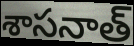
శాసనాత్